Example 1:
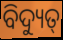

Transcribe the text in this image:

ବିଦ୍ୟୁତ୍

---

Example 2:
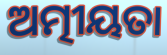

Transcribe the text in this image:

ଅତ୍ମୀୟତା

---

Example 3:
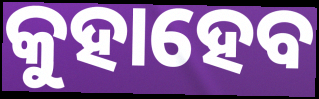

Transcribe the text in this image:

କୁହାହେବ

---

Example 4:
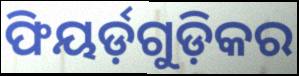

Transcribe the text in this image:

ଫିୟର୍ଡ଼ଗୁଡ଼ିକର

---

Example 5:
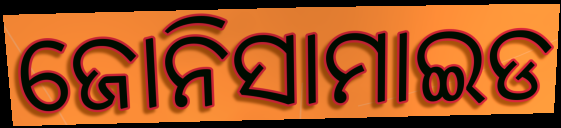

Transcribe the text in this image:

ଜୋନିସାମାଇଡ